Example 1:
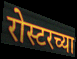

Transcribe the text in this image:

रोस्टरच्या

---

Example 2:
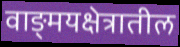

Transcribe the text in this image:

वाङ्मयक्षेत्रातील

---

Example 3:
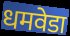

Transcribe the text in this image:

धमवेडा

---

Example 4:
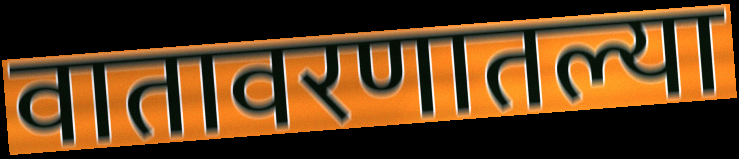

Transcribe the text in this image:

वातावरणातल्या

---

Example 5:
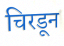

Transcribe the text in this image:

चिरडून